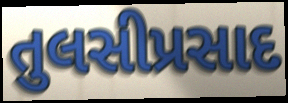
તુલસીપ્રસાદ